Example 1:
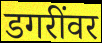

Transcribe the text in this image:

डगरींवर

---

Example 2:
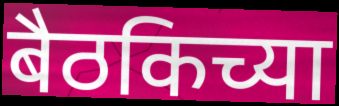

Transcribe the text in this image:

बैठकिच्या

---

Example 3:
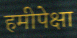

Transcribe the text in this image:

हमीपेक्षा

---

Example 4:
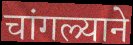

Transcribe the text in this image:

चांगल्याने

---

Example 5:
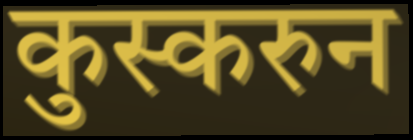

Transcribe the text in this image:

कुस्करुन